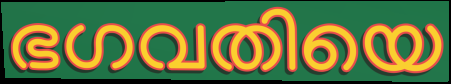
ഭഗവതിയെ